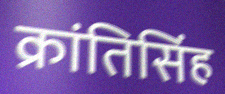
क्रांतिसिंह